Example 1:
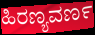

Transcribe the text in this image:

ಹಿರಣ್ಯವರ್ಣ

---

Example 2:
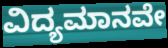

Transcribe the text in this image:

ವಿದ್ಯಮಾನವೇ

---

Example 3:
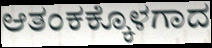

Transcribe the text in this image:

ಆತಂಕಕ್ಕೊಳಗಾದ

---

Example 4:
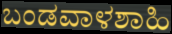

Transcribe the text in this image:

ಬಂಡವಾಳಶಾಹಿ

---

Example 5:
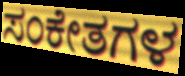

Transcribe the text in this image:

ಸಂಕೇತಗಳ